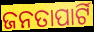
ଜନତାପାର୍ଟି